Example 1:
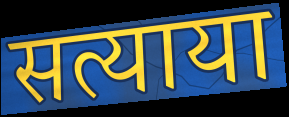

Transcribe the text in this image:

सत्याया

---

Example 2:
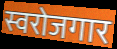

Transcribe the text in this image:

स्वरोजगार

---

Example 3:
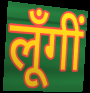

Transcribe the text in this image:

लूँगीं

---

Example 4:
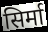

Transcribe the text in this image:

सिर्मा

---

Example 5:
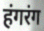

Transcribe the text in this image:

हंगरंग